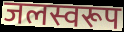
जलस्वरूप